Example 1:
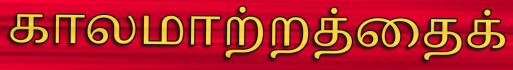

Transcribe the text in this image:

காலமாற்றத்தைக்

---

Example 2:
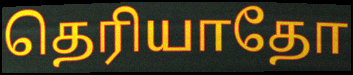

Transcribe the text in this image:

தெரியாதோ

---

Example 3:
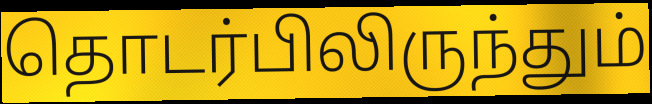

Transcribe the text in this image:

தொடர்பிலிருந்தும்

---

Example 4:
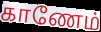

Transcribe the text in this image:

காணேம்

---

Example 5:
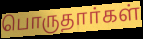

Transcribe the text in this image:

பொருதார்கள்